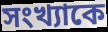
সংখ্যাকে